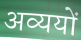
अव्ययों